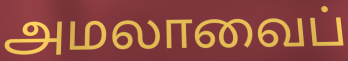
அமலாவைப்